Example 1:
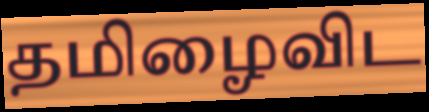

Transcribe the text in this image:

தமிழைவிட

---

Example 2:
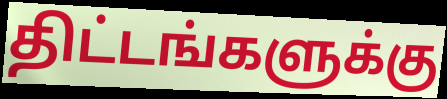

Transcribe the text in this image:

திட்டங்களுக்கு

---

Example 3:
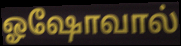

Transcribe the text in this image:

ஓஷோவால்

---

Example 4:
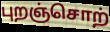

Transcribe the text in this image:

புறஞ்சொற்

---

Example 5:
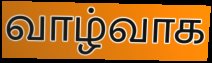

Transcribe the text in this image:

வாழ்வாக